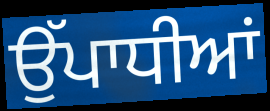
ਉੱਪਾਧੀਆਂ